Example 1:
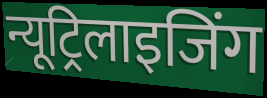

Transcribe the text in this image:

न्यूट्रिलाइजिंग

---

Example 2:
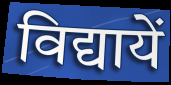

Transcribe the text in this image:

विद्यायें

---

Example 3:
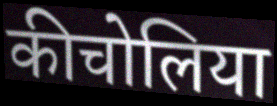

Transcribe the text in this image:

कीचोलिया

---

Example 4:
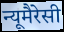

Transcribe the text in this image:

न्यूमैरेसी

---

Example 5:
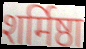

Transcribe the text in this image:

शर्मिष्ठा